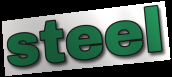
steel